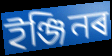
ইঞ্জিনৰ